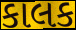
કાલક